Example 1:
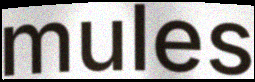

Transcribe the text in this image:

mules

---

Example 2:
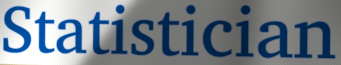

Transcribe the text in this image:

Statistician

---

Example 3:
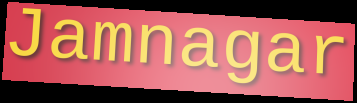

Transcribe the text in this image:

Jamnagar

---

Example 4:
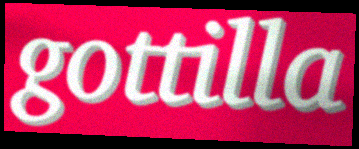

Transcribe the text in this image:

gottilla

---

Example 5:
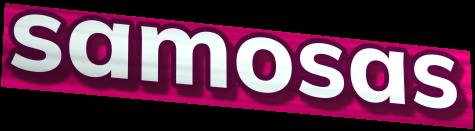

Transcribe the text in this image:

samosas